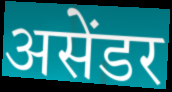
असेंडर